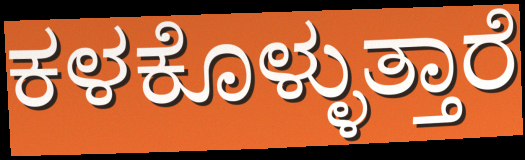
ಕಳಕೊಳ್ಳುತ್ತಾರೆ